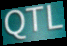
QTL